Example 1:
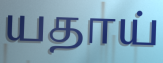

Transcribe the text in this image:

யதாய்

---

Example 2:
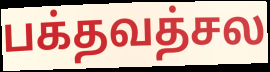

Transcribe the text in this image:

பக்தவத்சல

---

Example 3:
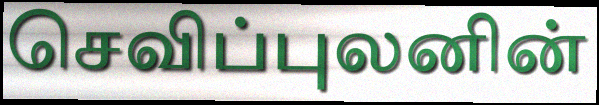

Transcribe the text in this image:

செவிப்புலனின்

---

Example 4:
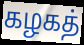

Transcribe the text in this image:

கழகத்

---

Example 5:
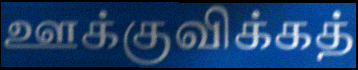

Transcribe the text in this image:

ஊக்குவிக்கத்